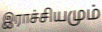
இராச்சியமும்